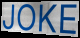
JOKE